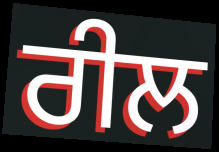
ਰੀਲ